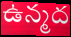
ఉన్మద